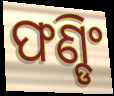
ଫଣ୍ଡିଂ